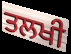
ਤਲਖੀ